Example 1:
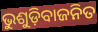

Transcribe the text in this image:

ଭୁଶୁଡ଼ିବାଜନିତ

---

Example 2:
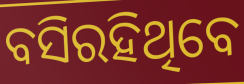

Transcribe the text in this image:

ବସିରହିଥିବେ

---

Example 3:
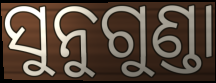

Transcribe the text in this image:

ସୁନୁଗୁଣ୍ଡା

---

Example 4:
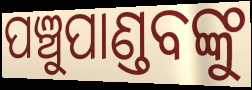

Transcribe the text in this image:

ପଞ୍ଚୁପାଣ୍ଡବଙ୍କୁ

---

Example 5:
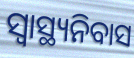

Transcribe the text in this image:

ସ୍ୱାସ୍ଥ୍ୟନିବାସ